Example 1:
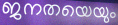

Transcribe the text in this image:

ജനതയെയും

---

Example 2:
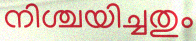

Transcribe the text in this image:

നിശ്ചയിച്ചതും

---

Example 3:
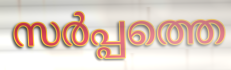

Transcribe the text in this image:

സർപ്പത്തെ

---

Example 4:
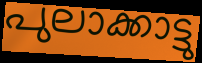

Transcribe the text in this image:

പുലാക്കാട്ടു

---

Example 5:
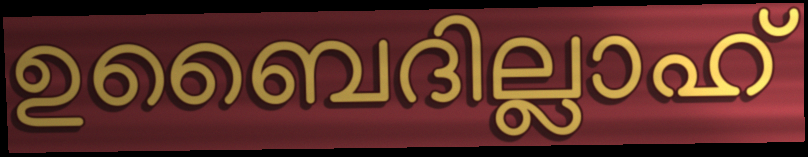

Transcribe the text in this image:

ഉബൈദില്ലാഹ്